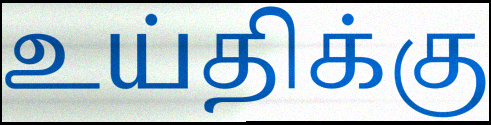
உய்திக்கு